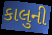
કાલુની